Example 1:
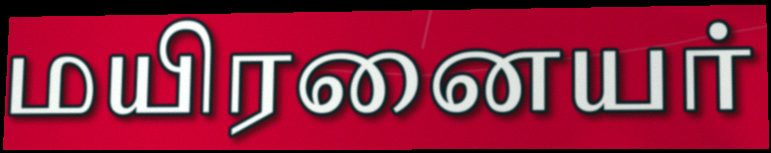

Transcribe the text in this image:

மயிரனையர்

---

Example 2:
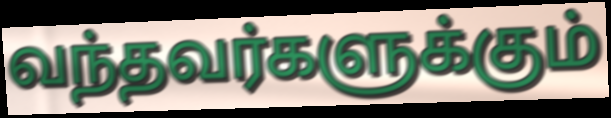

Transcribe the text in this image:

வந்தவர்களுக்கும்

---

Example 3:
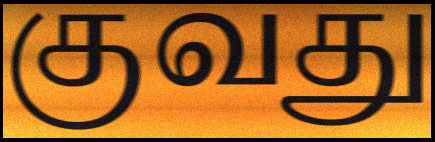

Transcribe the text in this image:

குவது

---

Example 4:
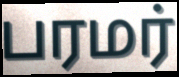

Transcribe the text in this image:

பரமர்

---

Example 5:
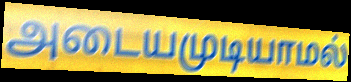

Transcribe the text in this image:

அடையமுடியாமல்